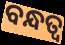
ବନ୍ଧତ୍ୱ